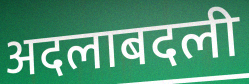
अदलाबदली